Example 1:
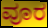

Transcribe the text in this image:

ವೂರ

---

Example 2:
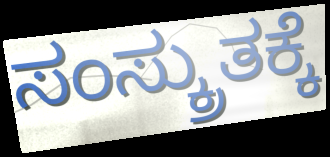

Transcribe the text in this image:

ಸಂಸ್ಕ್ರುತಕ್ಕೆ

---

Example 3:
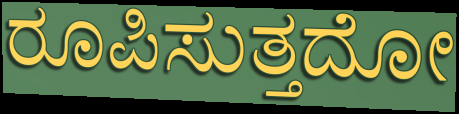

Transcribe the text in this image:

ರೂಪಿಸುತ್ತದೋ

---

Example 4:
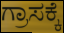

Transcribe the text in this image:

ಗ್ರಾಸಕ್ಕೆ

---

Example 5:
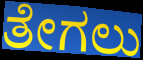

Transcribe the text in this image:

ತೇಗಲು